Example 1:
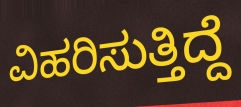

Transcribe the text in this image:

ವಿಹರಿಸುತ್ತಿದ್ದೆ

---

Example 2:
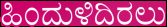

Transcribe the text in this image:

ಹಿಂದುಳಿದಿರಲು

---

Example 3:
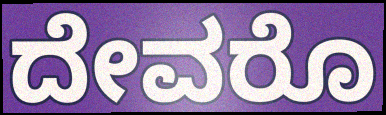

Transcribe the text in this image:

ದೇವರೊ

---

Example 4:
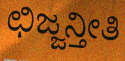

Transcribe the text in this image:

ಛಿಜ್ಜನ್ತೀತಿ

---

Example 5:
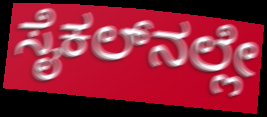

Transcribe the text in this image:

ಸೈಕಲ್‌ನಲ್ಲೇ